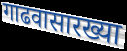
गाढवासारख्या